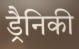
ड्रैनिकी